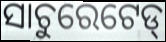
ସାଚୁରେଟେଡ୍